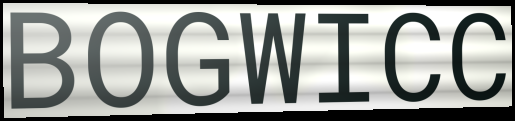
BOGWICC